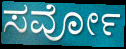
ಸರ್ವೋ